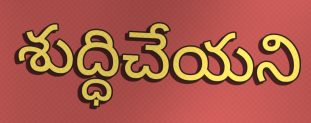
శుద్ధిచేయని